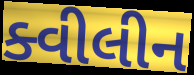
ક્વીલીન